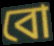
বো